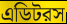
এডিটরস